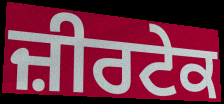
ਜ਼ੀਰਟੇਕ